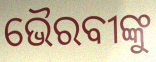
ଭୈରବୀଙ୍କୁ